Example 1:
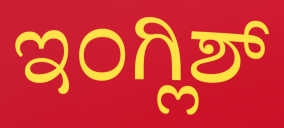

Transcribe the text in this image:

ಇಂಗ್ಲಿಶ್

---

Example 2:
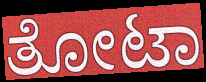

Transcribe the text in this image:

ತೋಟಾ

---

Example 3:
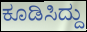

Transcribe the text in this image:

ಕೂಡಿಸಿದ್ದು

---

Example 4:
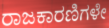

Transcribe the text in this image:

ರಾಜಕಾರಣಿಗಳೇ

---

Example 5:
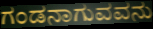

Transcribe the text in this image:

ಗಂಡನಾಗುವವನು